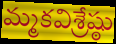
మ్మకవిశ్రేష్ఠు